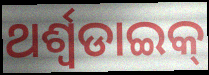
ଥର୍ଶ୍ଵଡାଇକ୍